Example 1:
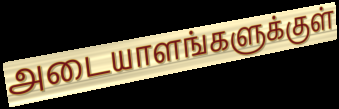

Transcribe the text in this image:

அடையாளங்களுக்குள்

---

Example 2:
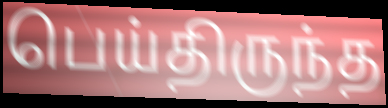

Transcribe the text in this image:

பெய்திருந்த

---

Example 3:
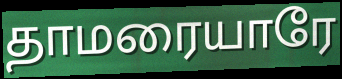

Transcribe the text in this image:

தாமரையாரே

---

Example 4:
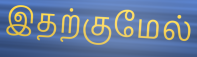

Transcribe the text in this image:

இதற்குமேல்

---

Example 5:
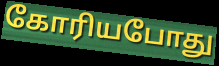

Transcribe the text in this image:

கோரியபோது